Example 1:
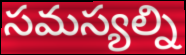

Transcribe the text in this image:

సమస్యల్ని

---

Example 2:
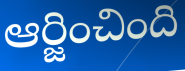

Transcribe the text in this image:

ఆర్జించింది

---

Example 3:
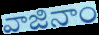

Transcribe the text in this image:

వాజినాం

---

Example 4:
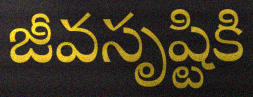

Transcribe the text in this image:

జీవసృష్టికి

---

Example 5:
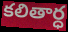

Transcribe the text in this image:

కలితార్ధ